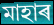
মাহাৰ